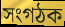
সংগঠক